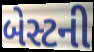
બેસ્ટની